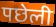
पछेली